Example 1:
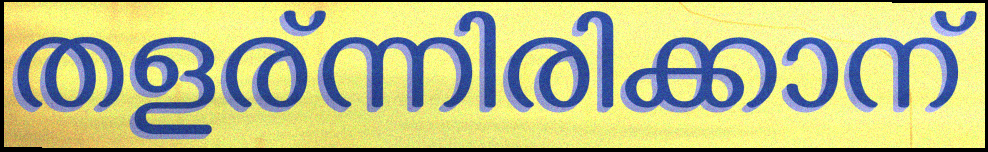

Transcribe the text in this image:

തളര്ന്നിരിക്കാന്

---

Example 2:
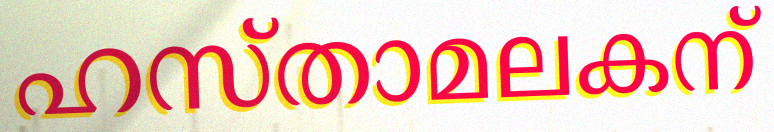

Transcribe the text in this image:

ഹസ്താമലകന്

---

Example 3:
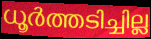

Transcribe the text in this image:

ധൂർത്തടിച്ചില്ല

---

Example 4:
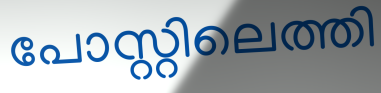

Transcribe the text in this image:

പോസ്റ്റിലെത്തി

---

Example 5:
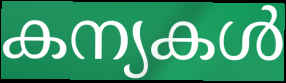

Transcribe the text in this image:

കന്യകൾ